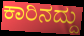
ಕಾರಿನದ್ದು